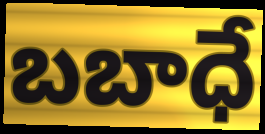
బబాధే